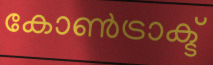
കോൺട്രാക്ട്